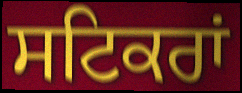
ਸਟਿਕਰਾਂ